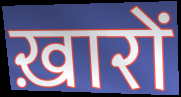
ख़ारों